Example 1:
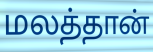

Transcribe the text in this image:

மலத்தான்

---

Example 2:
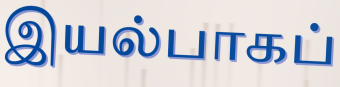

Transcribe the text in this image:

இயல்பாகப்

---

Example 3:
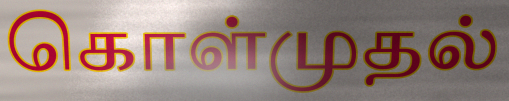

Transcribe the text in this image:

கொள்முதல்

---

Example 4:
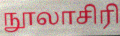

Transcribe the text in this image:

நூலாசிரி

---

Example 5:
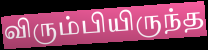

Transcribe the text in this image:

விரும்பியிருந்த